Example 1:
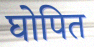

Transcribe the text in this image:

घोपित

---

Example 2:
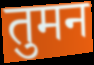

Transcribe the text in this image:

तुमन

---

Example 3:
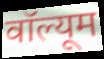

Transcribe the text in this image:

वॉल्यूम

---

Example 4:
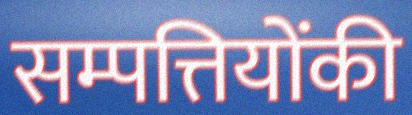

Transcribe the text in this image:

सम्पत्तियोंकी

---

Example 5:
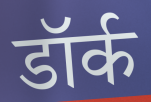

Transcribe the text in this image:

डॉर्क